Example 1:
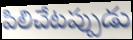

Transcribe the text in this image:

పిలిచేటప్పుడు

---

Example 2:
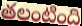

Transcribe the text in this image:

తలంటింది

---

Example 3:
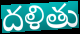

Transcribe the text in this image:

దళితు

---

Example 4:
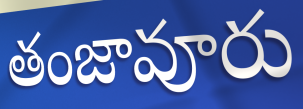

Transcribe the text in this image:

తంజావూరు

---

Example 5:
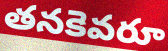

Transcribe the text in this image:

తనకెవరూ